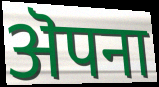
ऄपना